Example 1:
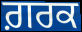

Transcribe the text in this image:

ਗ਼ਰਕ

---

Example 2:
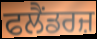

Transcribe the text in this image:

ਫਲੈਂਡਰਜ਼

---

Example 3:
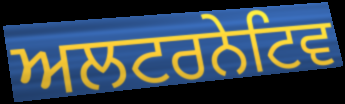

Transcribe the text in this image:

ਅਲਟਰਨੇਟਿਵ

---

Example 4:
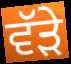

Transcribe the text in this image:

ਵੱਡ਼ੇ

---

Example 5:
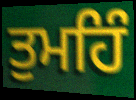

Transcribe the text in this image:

ਤੁਮਹਿੰ